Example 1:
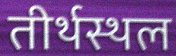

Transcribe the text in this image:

तीर्थस्थल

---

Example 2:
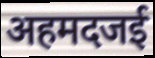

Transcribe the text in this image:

अहमदजई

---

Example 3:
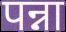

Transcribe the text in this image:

पन्ना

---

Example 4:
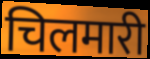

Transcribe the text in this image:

चिलमारी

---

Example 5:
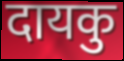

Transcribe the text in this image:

दायकु